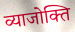
व्याजोक्ति